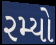
રમ્યો